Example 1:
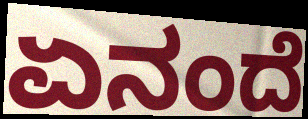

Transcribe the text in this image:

ಏನಂದೆ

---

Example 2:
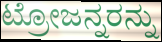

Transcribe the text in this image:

ಟ್ರೋಜನ್ನರನ್ನು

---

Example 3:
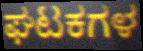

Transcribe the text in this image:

ಘಟಕಗಳ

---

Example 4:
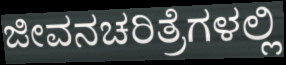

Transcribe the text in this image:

ಜೀವನಚರಿತ್ರೆಗಳಲ್ಲಿ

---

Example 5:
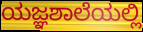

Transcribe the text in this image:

ಯಜ್ಞಶಾಲೆಯಲ್ಲಿ